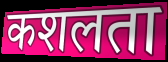
कशलता